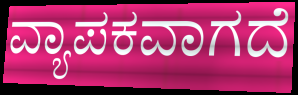
ವ್ಯಾಪಕವಾಗದೆ